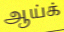
ஆய்க்